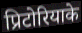
प्रिटोरियाके